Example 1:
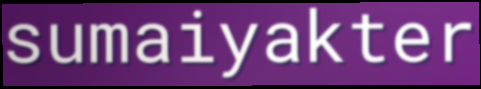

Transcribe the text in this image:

sumaiyakter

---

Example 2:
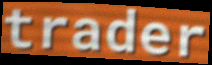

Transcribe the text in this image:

trader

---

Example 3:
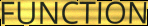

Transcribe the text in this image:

FUNCTION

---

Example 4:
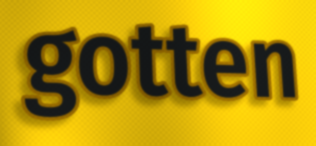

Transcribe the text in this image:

gotten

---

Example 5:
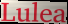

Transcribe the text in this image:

Lulea